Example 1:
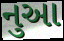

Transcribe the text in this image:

નુઆ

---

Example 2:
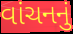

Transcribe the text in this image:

વાંચનનું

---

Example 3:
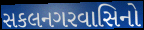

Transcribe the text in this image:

સકલનગરવાસિનો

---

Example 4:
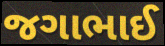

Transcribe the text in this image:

જગાભાઈ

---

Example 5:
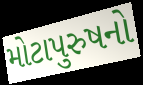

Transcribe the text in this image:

મોટાપુરુષનો